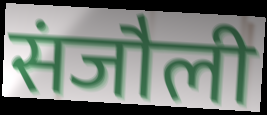
संजौली